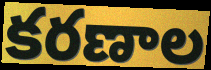
కరణాల